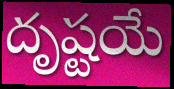
దృష్టయే